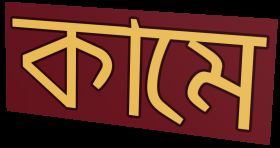
কামে